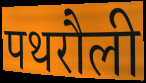
पथरौली